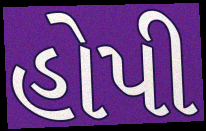
હોપી